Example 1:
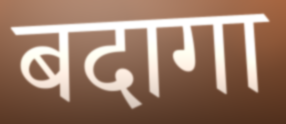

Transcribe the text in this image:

बदागा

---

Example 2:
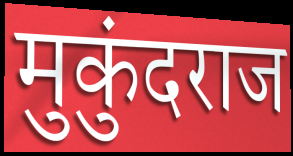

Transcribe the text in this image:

मुकुंदराज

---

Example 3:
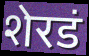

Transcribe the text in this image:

शेरडं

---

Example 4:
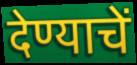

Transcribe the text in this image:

देण्याचें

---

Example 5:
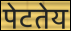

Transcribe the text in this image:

पेटतेय